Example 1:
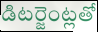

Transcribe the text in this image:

డిటర్జెంట్లతో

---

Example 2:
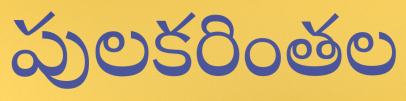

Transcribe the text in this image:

పులకరింతల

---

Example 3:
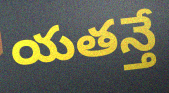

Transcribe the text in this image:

యతన్తే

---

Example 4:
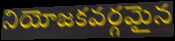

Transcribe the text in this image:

నియోజకవర్గమైన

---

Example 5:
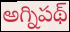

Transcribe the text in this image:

అగ్నిపథ్